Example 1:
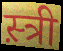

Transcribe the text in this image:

स़्त्री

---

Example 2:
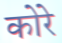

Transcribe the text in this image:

कोरे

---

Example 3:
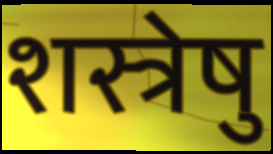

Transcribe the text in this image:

शस्त्रेषु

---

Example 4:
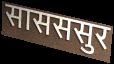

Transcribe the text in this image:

सासससुर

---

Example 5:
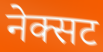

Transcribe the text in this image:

नेक्सट